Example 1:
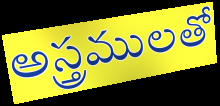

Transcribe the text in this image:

అస్త్రములతో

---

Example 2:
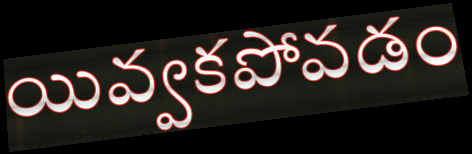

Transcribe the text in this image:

యివ్వకపోవడం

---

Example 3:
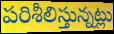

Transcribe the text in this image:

పరిశీలిస్తున్నట్లు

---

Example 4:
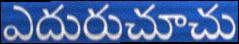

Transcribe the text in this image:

ఎదురుచూచు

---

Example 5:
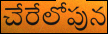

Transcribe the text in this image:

చేరేలోపున